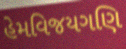
હેમવિજયગણિ